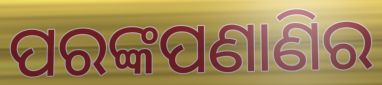
ପରଙ୍କପଣାଣିର